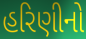
હરિણીનો